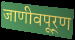
जाणीवपूर्ण